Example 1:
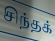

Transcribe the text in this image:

சிந்தக்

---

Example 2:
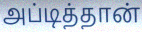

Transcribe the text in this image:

அப்டித்தான்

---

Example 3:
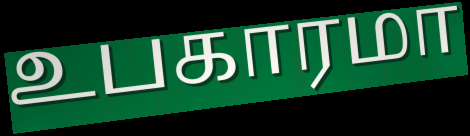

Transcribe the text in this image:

உபகாரமா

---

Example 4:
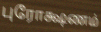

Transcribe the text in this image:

புரோக்ஷணம்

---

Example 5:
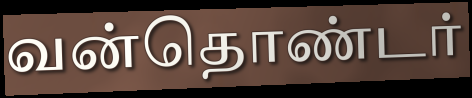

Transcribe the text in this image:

வன்தொண்டர்